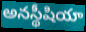
అనస్థీషియా